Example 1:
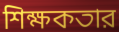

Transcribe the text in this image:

শিক্ষকতার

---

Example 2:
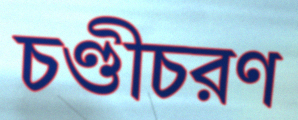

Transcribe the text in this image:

চণ্ডীচরণ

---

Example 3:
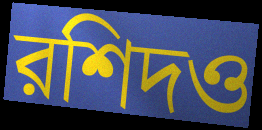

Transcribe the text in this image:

রশিদও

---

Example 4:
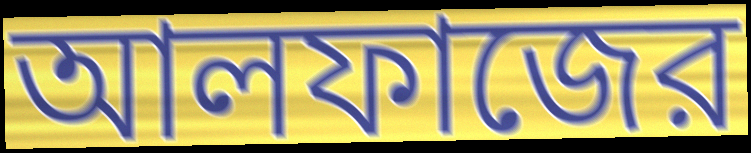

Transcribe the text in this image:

আলফাজের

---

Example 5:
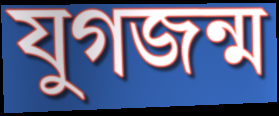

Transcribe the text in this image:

যুগজন্ম